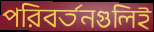
পরিবর্তনগুলিই